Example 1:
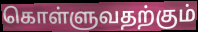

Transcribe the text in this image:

கொள்ளுவதற்கும்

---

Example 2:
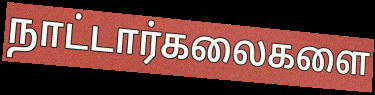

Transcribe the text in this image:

நாட்டார்கலைகளை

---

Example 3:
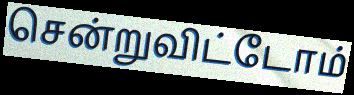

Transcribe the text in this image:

சென்றுவிட்டோம்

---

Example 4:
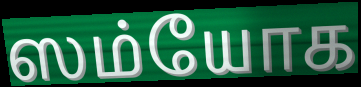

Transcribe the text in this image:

ஸம்யோக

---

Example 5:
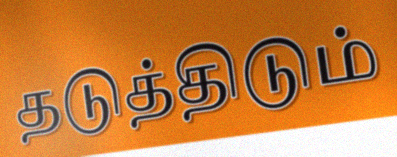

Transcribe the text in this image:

தடுத்திடும்